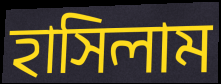
হাসিলাম